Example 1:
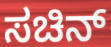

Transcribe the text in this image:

ಸಚಿನ್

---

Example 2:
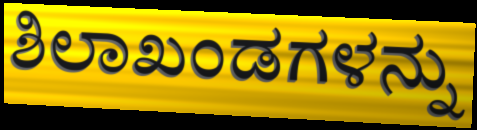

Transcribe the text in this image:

ಶಿಲಾಖಂಡಗಳನ್ನು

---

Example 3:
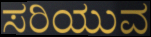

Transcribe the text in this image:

ಸರಿಯುವ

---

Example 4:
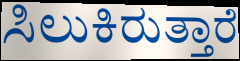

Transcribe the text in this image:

ಸಿಲುಕಿರುತ್ತಾರೆ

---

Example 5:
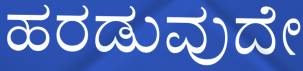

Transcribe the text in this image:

ಹರಡುವುದೇ